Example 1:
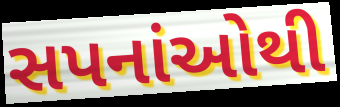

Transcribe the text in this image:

સપનાંઓથી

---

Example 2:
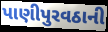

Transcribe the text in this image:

પાણીપુરવઠાની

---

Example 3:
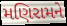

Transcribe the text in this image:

મણિરામને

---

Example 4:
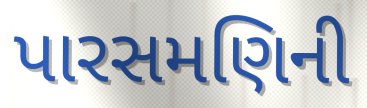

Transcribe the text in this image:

પારસમણિની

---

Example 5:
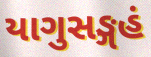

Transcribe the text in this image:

યાગુસઙ્ગહં